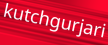
kutchgurjari